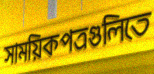
সাময়িকপত্রগুলিতে